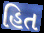
હિત